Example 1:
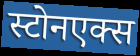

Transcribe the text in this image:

स्टोनएक्स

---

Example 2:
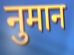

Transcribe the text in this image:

नुमान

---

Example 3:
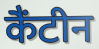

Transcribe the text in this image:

कैंटीन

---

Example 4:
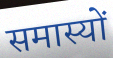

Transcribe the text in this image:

समास्यों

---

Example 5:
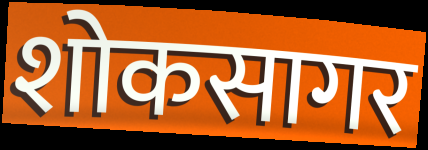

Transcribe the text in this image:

शोकसागर